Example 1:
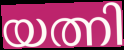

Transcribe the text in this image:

യത്നി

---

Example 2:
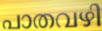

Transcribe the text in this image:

പാതവഴി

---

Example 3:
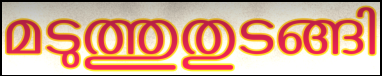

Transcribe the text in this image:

മടുത്തുതുടങ്ങി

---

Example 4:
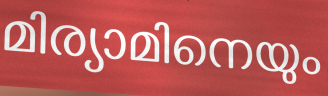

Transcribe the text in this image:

മിര്യാമിനെയും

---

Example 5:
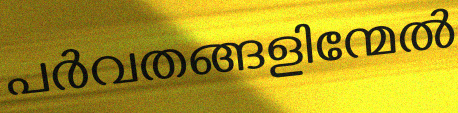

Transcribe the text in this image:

പർവതങ്ങളിന്മേൽ